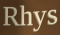
Rhys